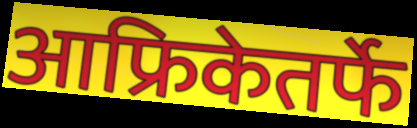
आफ्रिकेतर्फे